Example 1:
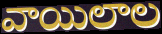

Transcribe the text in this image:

వాయిలాల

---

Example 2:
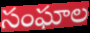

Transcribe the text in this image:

సంఘాల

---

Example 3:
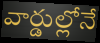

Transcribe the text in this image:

వార్డుల్లోనే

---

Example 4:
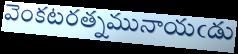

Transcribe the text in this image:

వెంకటరత్నమునాయఁడు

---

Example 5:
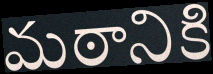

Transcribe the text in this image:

మఠానికి